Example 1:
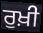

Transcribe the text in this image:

ਰੁਖ਼ੀ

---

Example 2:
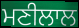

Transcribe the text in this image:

ਮਣੀਲਾਲ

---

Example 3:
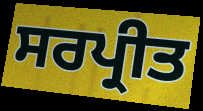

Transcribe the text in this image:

ਸਰਪ੍ਰੀਤ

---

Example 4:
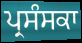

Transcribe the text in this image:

ਪ੍ਰਸੰਸਕਾ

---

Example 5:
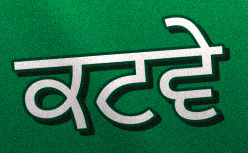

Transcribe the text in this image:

ਕਟਵੇ